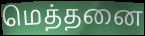
மெத்தனை